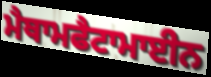
ਮੈਥਾਮਫੈਟਾਮਾਈਨ